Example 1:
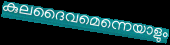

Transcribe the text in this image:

കുലദൈവമെന്നെയാളും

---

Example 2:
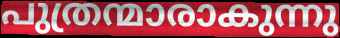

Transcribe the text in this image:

പുത്രന്മാരാകുന്നു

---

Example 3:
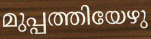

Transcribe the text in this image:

മുപ്പത്തിയേഴു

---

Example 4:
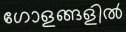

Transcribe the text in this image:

ഗോളങ്ങളിൽ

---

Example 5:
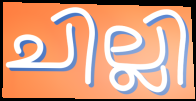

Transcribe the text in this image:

ചില്ലി